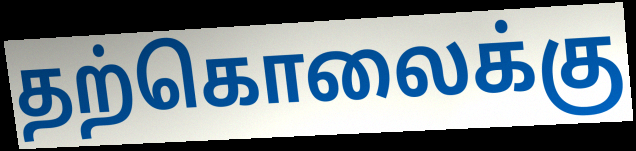
தற்கொலைக்கு